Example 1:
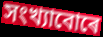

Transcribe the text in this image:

সংখ্যাবোৰে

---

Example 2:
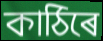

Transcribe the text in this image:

কাঠিৰে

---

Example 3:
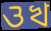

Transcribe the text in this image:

ওখ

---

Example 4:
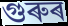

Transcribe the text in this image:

গুৰুৰ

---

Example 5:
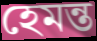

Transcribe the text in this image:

হেমন্ত